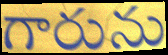
గారును